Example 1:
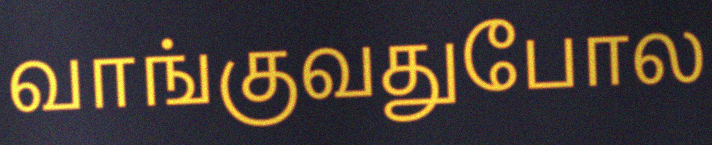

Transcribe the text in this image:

வாங்குவதுபோல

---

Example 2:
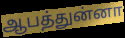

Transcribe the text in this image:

ஆபத்துன்னா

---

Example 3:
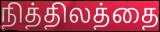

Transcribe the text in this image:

நித்திலத்தை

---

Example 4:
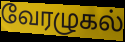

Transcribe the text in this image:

வேரழுகல்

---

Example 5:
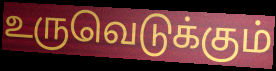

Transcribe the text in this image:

உருவெடுக்கும்